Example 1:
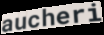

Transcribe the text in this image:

aucheri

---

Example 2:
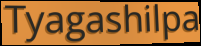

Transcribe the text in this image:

Tyagashilpa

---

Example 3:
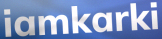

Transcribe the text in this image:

iamkarki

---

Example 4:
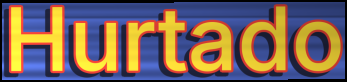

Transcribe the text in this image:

Hurtado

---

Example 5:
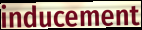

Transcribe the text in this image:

inducement